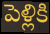
పెళ్లికి